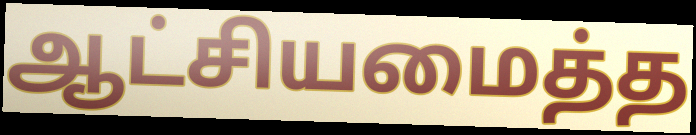
ஆட்சியமைத்த